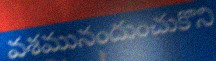
వశమునందుంచుకొని